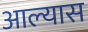
आल्यास